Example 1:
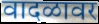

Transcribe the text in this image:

वादळावर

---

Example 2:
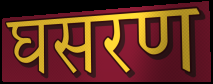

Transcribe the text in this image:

घसरण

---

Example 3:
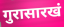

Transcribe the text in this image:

गुरासारखं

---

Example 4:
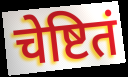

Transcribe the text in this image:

चेष्टितं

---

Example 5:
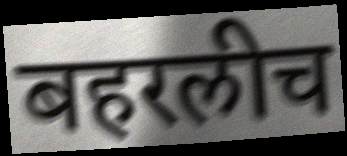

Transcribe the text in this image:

बहरलीच